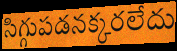
సిగ్గుపడనక్కరలేదు